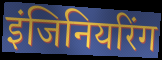
इंजिनियरिंग